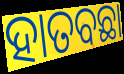
ହାତବଛା